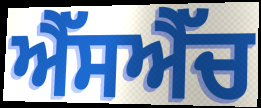
ਐੱਸਐੱਚ